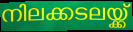
നിലക്കടലയ്ക്ക്